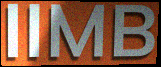
IIMB